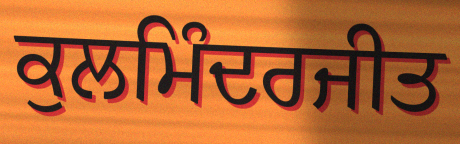
ਕੁਲਮਿੰਦਰਜੀਤ